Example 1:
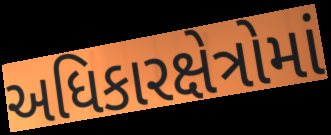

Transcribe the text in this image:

અધિકારક્ષેત્રોમાં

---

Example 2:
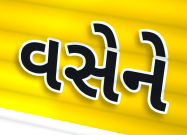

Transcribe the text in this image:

વસેને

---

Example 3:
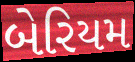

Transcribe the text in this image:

બેરિયમ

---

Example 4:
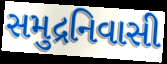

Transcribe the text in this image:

સમુદ્રનિવાસી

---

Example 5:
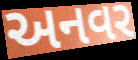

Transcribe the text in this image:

અનવર